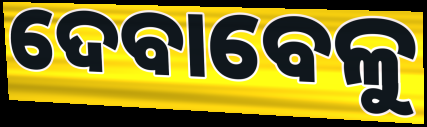
ଦେବାବେଳୁ